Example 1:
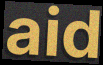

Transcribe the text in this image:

aid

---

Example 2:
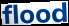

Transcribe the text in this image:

flood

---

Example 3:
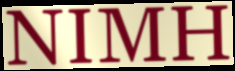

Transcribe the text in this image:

NIMH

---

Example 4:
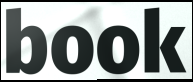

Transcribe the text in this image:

book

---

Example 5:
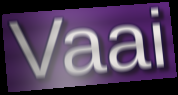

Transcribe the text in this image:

Vaai